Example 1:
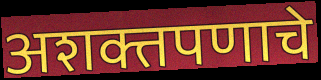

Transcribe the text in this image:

अशक्तपणाचे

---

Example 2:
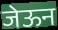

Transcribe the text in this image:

जेऊन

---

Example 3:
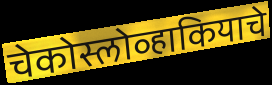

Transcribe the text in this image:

चेकोस्लोव्हाकियाचे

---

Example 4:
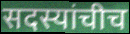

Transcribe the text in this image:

सदस्यांचीच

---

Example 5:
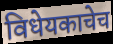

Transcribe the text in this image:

विधेयकाचेच